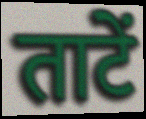
ताटें